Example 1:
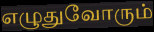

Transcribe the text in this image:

எழுதுவோரும்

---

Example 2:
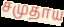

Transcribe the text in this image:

சமுதாய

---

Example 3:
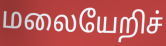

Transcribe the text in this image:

மலையேறிச்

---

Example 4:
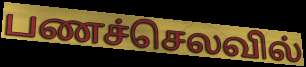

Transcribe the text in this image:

பணச்செலவில்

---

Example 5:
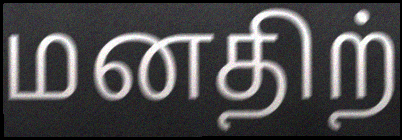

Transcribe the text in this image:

மனதிற்